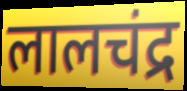
लालचंद्र